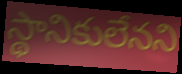
స్థానికులేనని